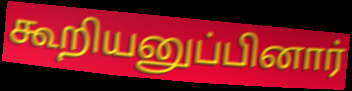
கூறியனுப்பினார்